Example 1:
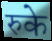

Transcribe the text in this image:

रुके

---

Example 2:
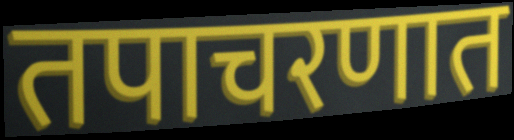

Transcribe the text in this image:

तपाचरणात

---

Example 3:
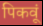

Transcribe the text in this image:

पिकवूं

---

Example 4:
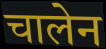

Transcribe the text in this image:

चालेन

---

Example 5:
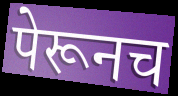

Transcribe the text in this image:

पेरूनच